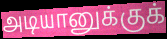
அடியானுக்குக்